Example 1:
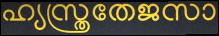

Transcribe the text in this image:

ഹ്യസ്ത്രതേജസാ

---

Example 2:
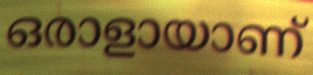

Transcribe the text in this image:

ഒരാളായാണ്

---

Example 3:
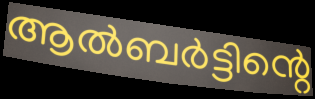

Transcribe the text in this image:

ആൽബർട്ടിന്റെ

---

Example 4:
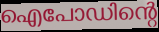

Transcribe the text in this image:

ഐപോഡിന്റെ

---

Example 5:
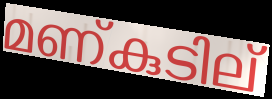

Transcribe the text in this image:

മണ്കുടില്